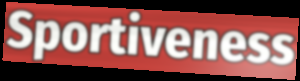
Sportiveness